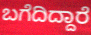
ಬಗೆದಿದ್ದಾರೆ